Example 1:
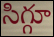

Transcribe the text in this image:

సిగ్గూ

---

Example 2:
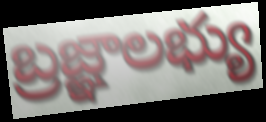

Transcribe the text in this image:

బ్రజ్ఞాలభ్యు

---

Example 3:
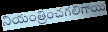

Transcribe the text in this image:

నియంత్రించగలిగాయి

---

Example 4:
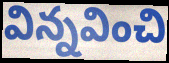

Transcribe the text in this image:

విన్నవించి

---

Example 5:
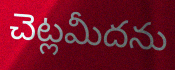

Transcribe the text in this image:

చెట్లమీదను